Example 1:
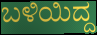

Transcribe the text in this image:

ಬಳಿಯಿದ್ದ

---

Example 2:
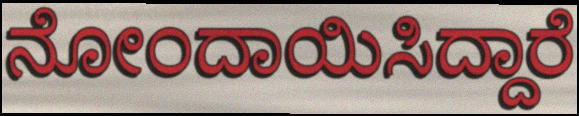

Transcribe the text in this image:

ನೋಂದಾಯಿಸಿದ್ದಾರೆ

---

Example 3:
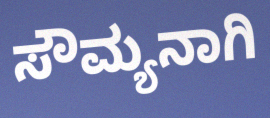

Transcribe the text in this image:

ಸೌಮ್ಯನಾಗಿ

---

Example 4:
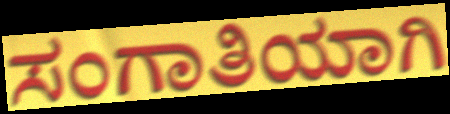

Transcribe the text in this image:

ಸಂಗಾತಿಯಾಗಿ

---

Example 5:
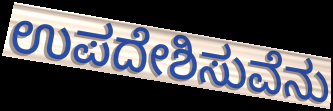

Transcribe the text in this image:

ಉಪದೇಶಿಸುವೆನು